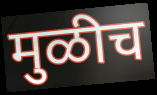
मुळीच